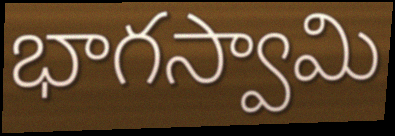
భాగస్వామి